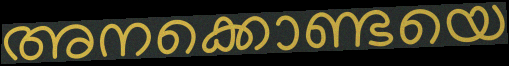
അനക്കൊണ്ടയെ